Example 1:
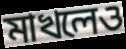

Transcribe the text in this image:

মাখলেও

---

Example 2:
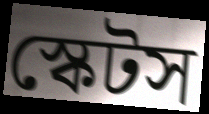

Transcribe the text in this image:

স্কেটস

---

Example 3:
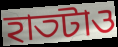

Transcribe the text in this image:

হাতটাও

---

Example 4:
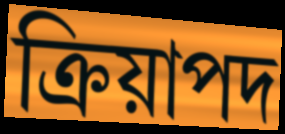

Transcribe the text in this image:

ক্রিয়াপদ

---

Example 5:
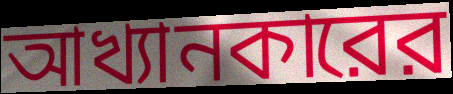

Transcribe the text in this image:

আখ্যানকারের